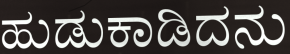
ಹುಡುಕಾಡಿದನು